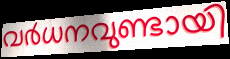
വർധനവുണ്ടായി